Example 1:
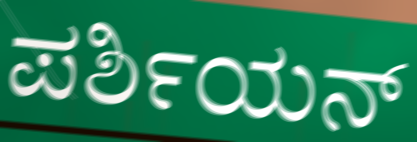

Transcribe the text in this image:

ಪರ್ಶಿಯನ್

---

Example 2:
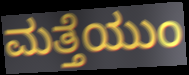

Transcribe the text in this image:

ಮತ್ತೆಯುಂ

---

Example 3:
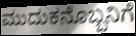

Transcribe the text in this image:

ಮುದುಕನೊಬ್ಬನಿಗೆ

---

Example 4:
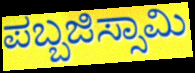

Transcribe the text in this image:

ಪಬ್ಬಜಿಸ್ಸಾಮಿ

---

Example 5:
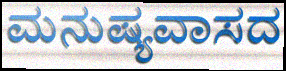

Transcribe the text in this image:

ಮನುಷ್ಯವಾಸದ